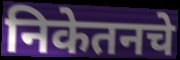
निकेतनचे